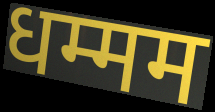
धम्मम